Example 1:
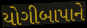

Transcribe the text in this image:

યોગીબાપાને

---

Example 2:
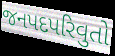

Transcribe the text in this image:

જનપદપરિવુતો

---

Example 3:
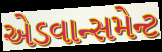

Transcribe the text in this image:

એડવાન્સમેન્ટ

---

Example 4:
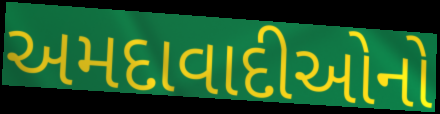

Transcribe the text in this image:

અમદાવાદીઓનો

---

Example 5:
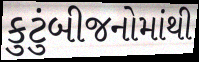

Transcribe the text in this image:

કુટુંબીજનોમાંથી